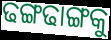
ଢଙ୍ଗଢାଙ୍ଗକୁ